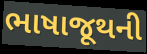
ભાષાજૂથની